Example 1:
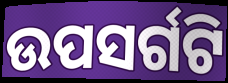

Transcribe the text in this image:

ଉପସର୍ଗଟି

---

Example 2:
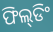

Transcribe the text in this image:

ଫିଲ୍‌ଡିଂ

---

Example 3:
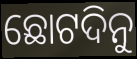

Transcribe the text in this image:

ଛୋଟଦିନୁ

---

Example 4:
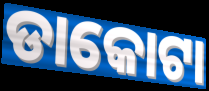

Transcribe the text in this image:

ଡାକୋଟା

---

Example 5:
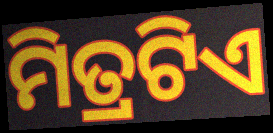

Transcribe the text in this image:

ମିତ୍ରଟିଏ